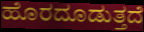
ಹೊರದೂಡುತ್ತದೆ